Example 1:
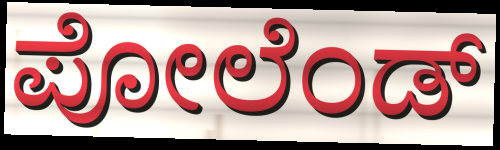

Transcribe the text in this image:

ಪೋಲೆಂಡ್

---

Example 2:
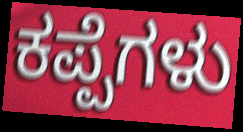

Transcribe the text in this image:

ಕಪ್ಪೆಗಳು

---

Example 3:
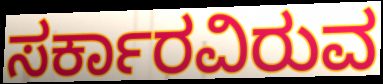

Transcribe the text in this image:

ಸರ್ಕಾರವಿರುವ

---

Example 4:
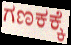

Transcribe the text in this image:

ಗಣಕಕ್ಕೆ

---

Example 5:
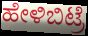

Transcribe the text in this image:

ಹೇಳಿಬಿಟ್ರೆ